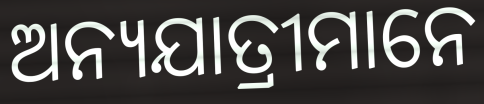
ଅନ୍ୟଯାତ୍ରୀମାନେ